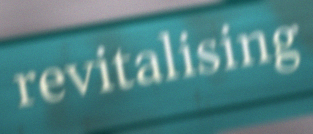
revitalising